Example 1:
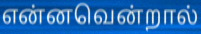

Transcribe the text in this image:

என்னவென்றால்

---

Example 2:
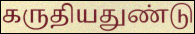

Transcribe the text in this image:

கருதியதுண்டு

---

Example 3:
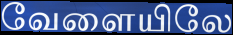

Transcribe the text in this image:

வேளையிலே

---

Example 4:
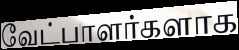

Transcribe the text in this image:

வேட்பாளர்களாக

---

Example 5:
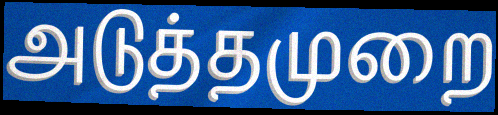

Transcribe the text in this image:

அடுத்தமுறை